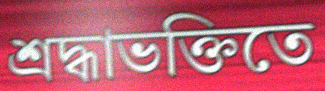
শ্রদ্ধাভক্তিতে